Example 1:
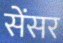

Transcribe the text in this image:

सेंसर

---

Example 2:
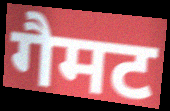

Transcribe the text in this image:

गैमट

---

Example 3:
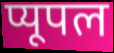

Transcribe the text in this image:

प्यूपल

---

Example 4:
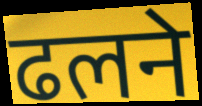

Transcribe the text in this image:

ढलने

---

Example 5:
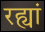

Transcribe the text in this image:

रह्यां